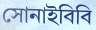
সোনাইবিবি